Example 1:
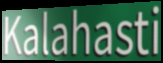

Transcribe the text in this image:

Kalahasti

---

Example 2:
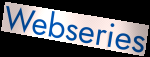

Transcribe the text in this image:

Webseries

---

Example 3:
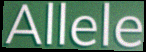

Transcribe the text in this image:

Allele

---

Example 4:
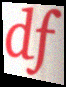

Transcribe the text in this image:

df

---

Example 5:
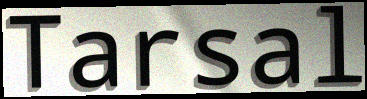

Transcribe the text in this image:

Tarsal